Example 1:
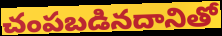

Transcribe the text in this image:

చంపబడినదానితో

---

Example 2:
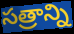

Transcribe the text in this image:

సత్రాన్ని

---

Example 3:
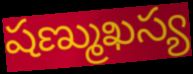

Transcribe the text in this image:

షణ్ముఖస్య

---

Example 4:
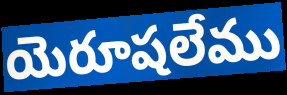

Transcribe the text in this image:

యెరూషలేము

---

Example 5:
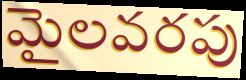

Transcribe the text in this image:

మైలవరపు